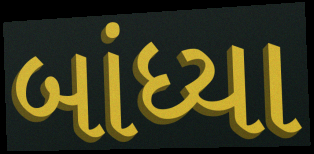
બાંધ્યા